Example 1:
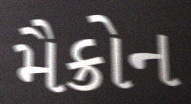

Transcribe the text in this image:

મૈક્રોન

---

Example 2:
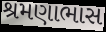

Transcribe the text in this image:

શ્રમણાભાસ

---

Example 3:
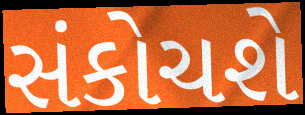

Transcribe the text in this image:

સંકોચશે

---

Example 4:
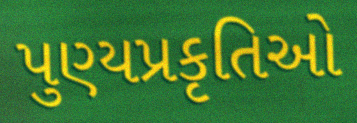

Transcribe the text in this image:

પુણ્યપ્રકૃતિઓ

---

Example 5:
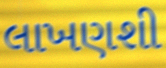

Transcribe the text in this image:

લાખણશી